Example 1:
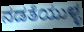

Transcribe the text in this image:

ನಡತೆಯುಳ್ಳ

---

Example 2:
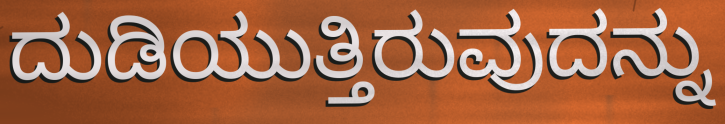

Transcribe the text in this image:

ದುಡಿಯುತ್ತಿರುವುದನ್ನು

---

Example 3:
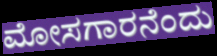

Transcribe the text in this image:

ಮೋಸಗಾರನೆಂದು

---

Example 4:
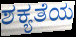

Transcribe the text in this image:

ಶಕ್ಯತೆಯ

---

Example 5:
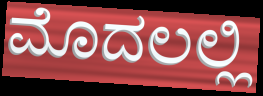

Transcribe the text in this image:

ಮೊದಲಲ್ಲಿ